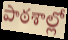
పాఠశాల్లో